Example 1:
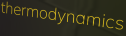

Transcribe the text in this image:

thermodynamics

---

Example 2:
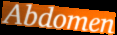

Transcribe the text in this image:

Abdomen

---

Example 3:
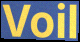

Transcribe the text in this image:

Voil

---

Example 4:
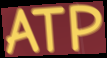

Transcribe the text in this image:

ATP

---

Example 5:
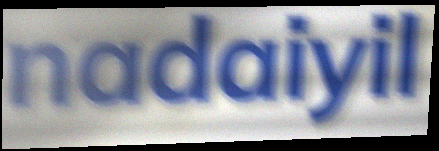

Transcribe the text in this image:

nadaiyil